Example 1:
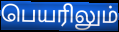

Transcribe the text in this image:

பெயரிலும்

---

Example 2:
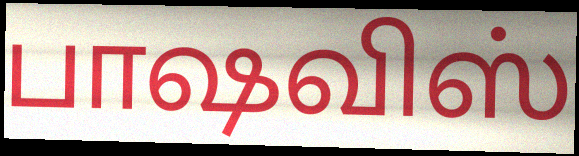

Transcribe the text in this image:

பாஷவிஸ்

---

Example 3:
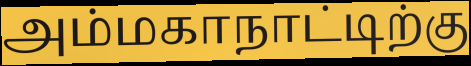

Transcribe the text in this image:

அம்மகாநாட்டிற்கு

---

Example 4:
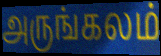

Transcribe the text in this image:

அருங்கலம்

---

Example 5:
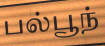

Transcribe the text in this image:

பல்பூந்